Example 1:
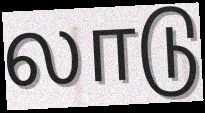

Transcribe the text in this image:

லாடு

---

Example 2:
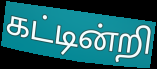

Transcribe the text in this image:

கட்டின்றி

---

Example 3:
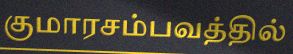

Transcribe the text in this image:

குமாரசம்பவத்தில்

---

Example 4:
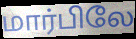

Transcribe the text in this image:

மார்பிலே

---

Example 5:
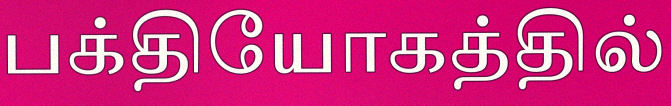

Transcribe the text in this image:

பக்தியோகத்தில்